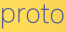
proto